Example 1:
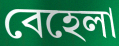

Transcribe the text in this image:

বেহেলা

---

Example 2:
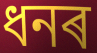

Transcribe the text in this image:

ধনৰ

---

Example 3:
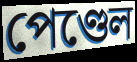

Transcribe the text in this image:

পেণ্ডেল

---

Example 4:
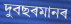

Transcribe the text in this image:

দুবছৰমানৰ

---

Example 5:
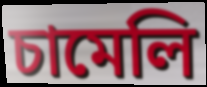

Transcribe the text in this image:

চামেলি